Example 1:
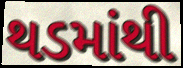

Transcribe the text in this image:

થડમાંથી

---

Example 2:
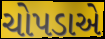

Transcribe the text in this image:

ચોપડાએ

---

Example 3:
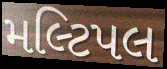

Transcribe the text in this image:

મલ્ટિપલ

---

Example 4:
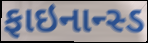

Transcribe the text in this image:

ફાઇનાન્સ્ડ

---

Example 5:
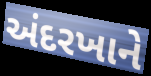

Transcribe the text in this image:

અંદરખાને